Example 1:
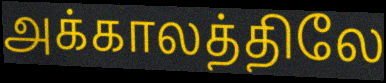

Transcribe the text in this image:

அக்காலத்திலே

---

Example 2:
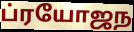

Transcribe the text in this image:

ப்ரயோஜந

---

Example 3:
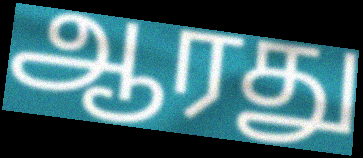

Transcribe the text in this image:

ஆரது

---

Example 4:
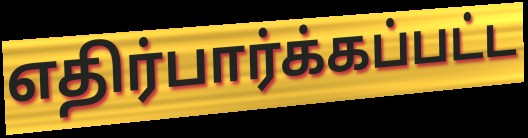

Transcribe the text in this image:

எதிர்பார்க்கப்பட்ட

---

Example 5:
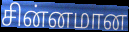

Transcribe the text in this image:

சின்னமான